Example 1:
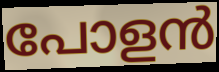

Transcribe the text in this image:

പോളൻ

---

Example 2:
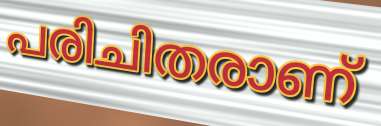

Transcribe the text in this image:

പരിചിതരാണ്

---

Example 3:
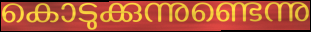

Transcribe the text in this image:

കൊടുക്കുന്നുണ്ടെന്നു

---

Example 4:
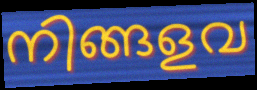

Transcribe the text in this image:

നിങ്ങളവ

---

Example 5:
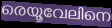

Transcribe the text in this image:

രെയൂവേലിനെ